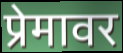
प्रेमावर